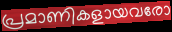
പ്രമാണികളായവരോ